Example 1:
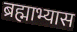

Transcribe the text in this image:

ब्रह्माभ्यास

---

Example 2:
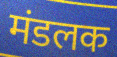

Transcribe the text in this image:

मंडलक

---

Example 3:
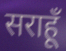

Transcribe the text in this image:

सराहूँ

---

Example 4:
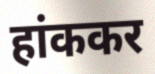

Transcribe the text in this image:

हांककर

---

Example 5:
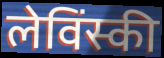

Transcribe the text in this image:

लेविंस्की